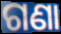
ଗଣା